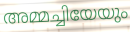
അമ്മച്ചിയേയും